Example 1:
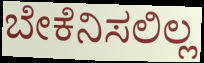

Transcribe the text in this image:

ಬೇಕೆನಿಸಲಿಲ್ಲ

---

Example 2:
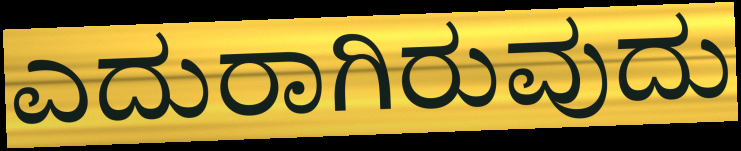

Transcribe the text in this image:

ಎದುರಾಗಿರುವುದು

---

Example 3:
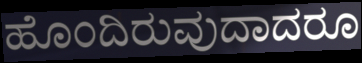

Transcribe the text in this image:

ಹೊಂದಿರುವುದಾದರೂ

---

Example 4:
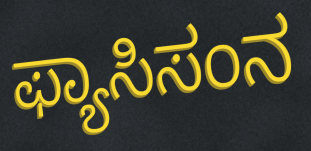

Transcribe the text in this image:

ಫ್ಯಾಸಿಸಂನ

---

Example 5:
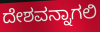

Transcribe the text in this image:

ದೇಶವನ್ನಾಗಲಿ